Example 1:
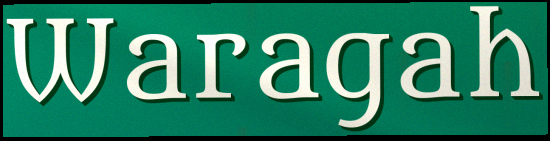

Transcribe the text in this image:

Waragah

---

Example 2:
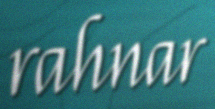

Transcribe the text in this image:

rahnar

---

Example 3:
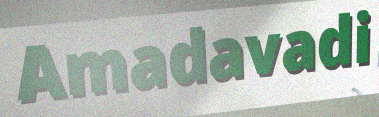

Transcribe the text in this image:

Amadavadi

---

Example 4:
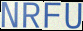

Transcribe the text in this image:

NRFU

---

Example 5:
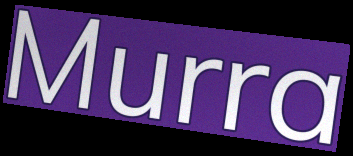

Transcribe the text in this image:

Murra